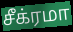
சீக்ரமா